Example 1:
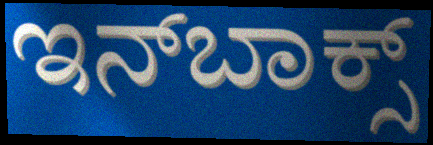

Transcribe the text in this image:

ಇನ್‍ಬಾಕ್ಸ್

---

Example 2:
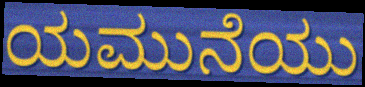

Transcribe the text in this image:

ಯಮುನೆಯು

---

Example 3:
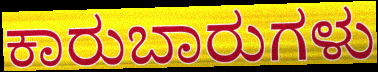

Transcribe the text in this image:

ಕಾರುಬಾರುಗಳು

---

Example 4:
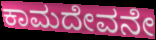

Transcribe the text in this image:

ಕಾಮದೇವನೇ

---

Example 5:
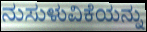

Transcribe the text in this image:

ನುಸುಳುವಿಕೆಯನ್ನು